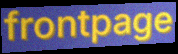
frontpage